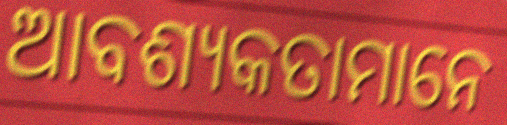
ଆବଶ୍ୟକତାମାନେ